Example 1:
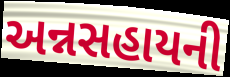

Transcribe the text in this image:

અન્નસહાયની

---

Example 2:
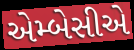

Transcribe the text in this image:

એમ્બેસીએ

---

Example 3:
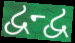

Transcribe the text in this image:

દ્વન્દ્વ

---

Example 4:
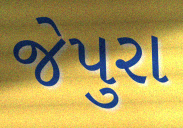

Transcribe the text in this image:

જેપુરા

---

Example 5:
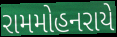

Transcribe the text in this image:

રામમોહનરાયે